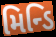
મિન્ડિ